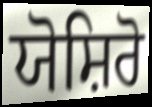
ਯੋਸ਼ਿਰੋ